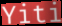
Yiti